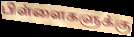
பிள்ளைகளுக்கு